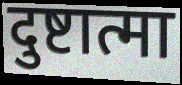
दुष्टात्मा